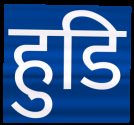
हुडि